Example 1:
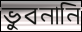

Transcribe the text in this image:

ভুবনানি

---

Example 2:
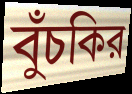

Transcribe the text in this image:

বুঁচকির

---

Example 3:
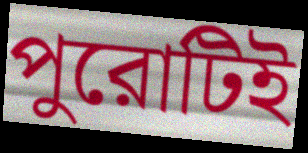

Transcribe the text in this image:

পুরোটিই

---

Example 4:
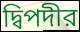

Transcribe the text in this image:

দ্বিপদীর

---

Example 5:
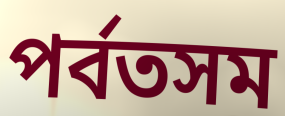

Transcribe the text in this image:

পর্বতসম